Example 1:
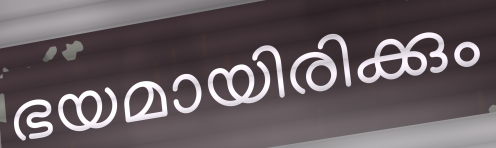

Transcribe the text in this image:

ഭയമായിരിക്കും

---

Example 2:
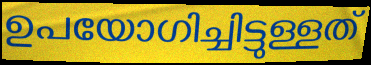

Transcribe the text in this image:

ഉപയോഗിച്ചിട്ടുള്ളത്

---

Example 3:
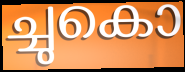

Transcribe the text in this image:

ച്ചുകൊ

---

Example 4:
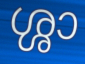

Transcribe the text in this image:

ശ്ശാ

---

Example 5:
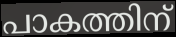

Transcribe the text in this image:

പാകത്തിന്